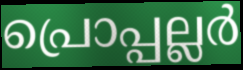
പ്രൊപ്പല്ലർ